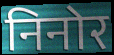
निनोर